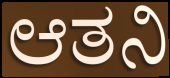
ಆತನಿ